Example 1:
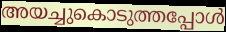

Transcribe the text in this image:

അയച്ചുകൊടുത്തപ്പോൾ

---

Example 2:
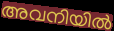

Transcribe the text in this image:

അവനിയിൽ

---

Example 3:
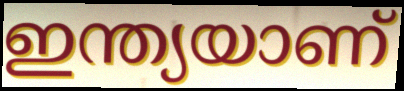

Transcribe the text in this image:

ഇന്ത്യയാണ്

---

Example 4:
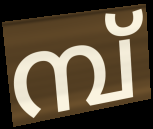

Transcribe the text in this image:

മ്പ്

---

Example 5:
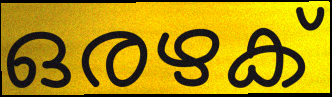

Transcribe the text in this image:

ഒരഴക്